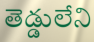
తెడ్డులేని